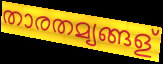
താരതമ്യങ്ങള്